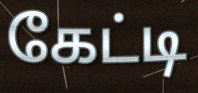
கேட்டி